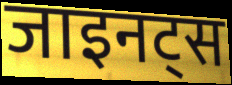
जाइनट्स